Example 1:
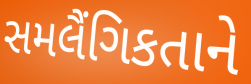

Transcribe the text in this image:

સમલૈંગિકતાને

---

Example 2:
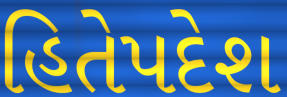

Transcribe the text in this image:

હિતેપદેશ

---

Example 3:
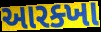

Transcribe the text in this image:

આરક્ખા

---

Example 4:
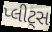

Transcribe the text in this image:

પ્લીટ્સ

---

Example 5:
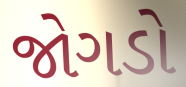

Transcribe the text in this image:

જોગડો